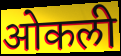
ओकली